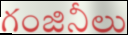
గంజినీలు